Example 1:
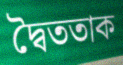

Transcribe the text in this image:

দ্বৈততাক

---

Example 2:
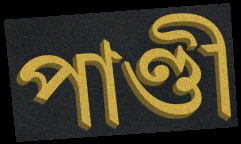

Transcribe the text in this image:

পাণ্ডী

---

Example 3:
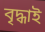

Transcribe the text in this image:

বৃদ্ধাই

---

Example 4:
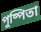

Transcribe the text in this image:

পুষ্পিতা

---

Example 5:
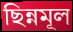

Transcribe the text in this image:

ছিন্নমূল